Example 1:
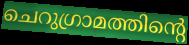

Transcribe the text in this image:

ചെറുഗ്രാമത്തിന്റെ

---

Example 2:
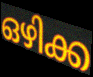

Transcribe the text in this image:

ഒഴിക്ക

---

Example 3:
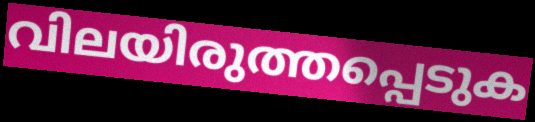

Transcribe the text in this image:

വിലയിരുത്തപ്പെടുക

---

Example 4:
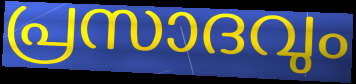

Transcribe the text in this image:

പ്രസാദവും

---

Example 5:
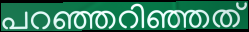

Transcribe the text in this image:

പറഞ്ഞറിഞ്ഞത്